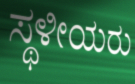
ಸ್ಥಳೀಯರು